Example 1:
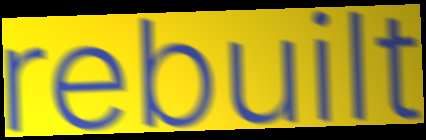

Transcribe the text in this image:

rebuilt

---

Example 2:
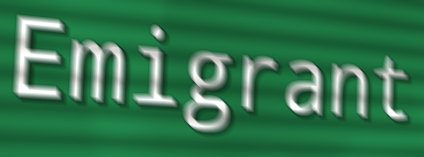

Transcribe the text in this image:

Emigrant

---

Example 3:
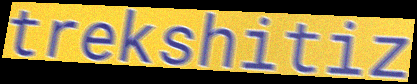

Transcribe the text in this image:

trekshitiz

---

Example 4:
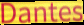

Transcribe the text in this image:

Dantes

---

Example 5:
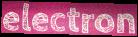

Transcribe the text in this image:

electron